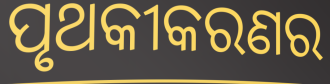
ପୃଥକୀକରଣର